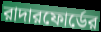
রাদারফোর্ডের